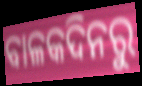
ବାଳକଦିନରୁ